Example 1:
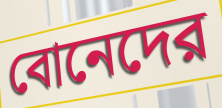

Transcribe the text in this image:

বোনেদের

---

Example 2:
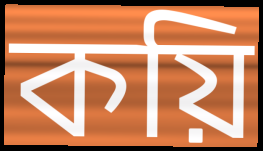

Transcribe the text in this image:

কয়ি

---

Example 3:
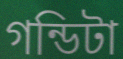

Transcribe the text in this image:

গন্ডিটা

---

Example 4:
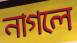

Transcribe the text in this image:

নাগলে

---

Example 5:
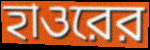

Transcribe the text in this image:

হাওরের